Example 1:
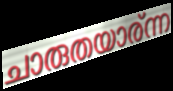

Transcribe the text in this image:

ചാരുതയാര്ന്ന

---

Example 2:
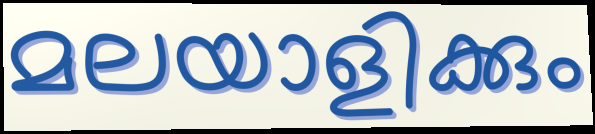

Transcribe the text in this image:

മലയാളിക്കും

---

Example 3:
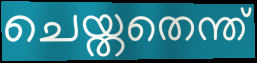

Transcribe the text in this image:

ചെയ്തതെന്ത്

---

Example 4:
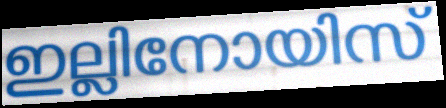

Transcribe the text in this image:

ഇല്ലിനോയിസ്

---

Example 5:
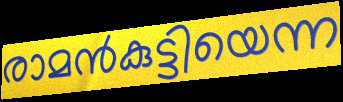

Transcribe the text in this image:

രാമൻകുട്ടിയെന്ന